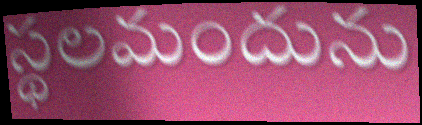
స్థలమందును